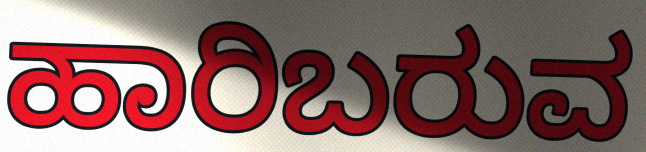
ಹಾರಿಬರುವ